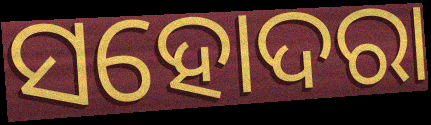
ସହୋଦରା